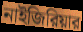
নাইজিরিয়ার